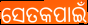
ସେତକପାଇଁ